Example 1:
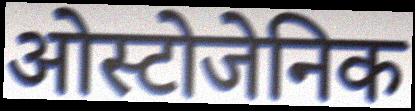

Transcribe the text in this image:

ओस्टोजेनिक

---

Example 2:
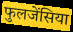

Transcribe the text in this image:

फुलजेंसिया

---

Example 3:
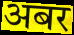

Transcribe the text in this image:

अबर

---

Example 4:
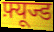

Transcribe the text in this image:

फ़्यूज्ड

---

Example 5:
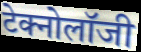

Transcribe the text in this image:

टेक्‍नोलॉजी